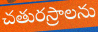
చతురస్రాలను